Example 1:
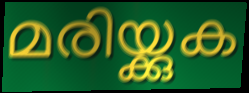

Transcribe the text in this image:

മരിയ്ക്കുക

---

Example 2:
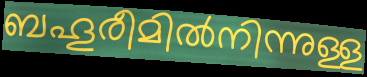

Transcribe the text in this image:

ബഹൂരീമിൽനിന്നുള്ള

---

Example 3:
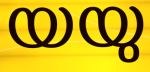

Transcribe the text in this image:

യയു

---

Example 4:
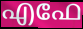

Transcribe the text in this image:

എഫേ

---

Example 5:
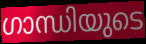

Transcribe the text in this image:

ഗാന്ധിയുടെ